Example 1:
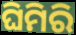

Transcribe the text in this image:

ଘିମିରି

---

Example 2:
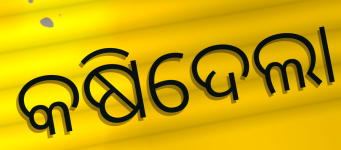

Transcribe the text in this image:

କଷିଦେଲା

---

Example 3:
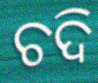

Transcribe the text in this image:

ଚଦି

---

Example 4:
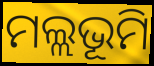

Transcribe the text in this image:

ମଲ୍ଲଭୂମି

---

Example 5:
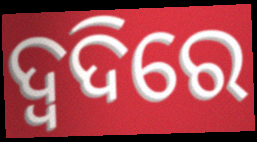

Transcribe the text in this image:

ଦ୍ଵଦିରେ